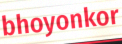
bhoyonkor